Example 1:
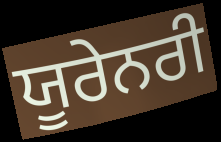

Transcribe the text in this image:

ਯੂਰੇਨਰੀ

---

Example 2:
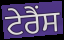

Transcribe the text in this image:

ਟੇਰੈਂਸ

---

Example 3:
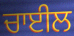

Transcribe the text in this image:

ਚਾਈਲ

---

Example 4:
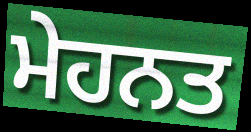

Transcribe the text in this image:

ਮੇਹਨਤ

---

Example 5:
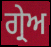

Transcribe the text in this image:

ਗ੍ਰੇਅ